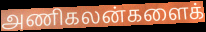
அணிகலன்களைக்